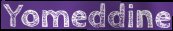
Yomeddine